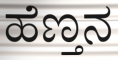
ಹೆಣ್ತನ